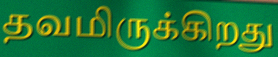
தவமிருக்கிறது